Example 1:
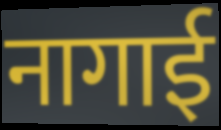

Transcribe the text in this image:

नागाई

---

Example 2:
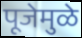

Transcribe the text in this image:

पूजेमुळे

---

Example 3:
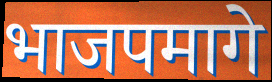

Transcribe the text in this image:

भाजपमागे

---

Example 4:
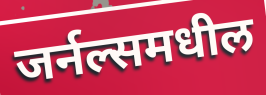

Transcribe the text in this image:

जर्नल्समधील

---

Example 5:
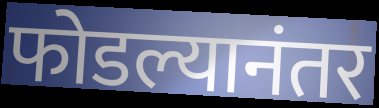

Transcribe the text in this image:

फोडल्यानंतर